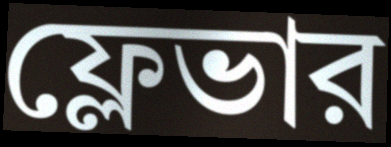
ফ্লেভার